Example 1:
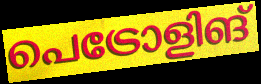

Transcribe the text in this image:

പെട്രോളിങ്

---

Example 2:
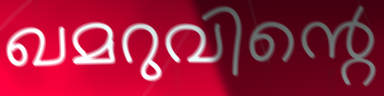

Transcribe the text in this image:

ഖമറുവിന്റെ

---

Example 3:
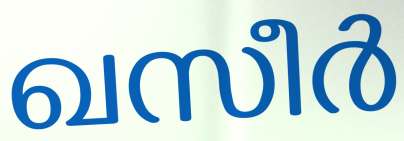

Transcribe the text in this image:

ഖസീർ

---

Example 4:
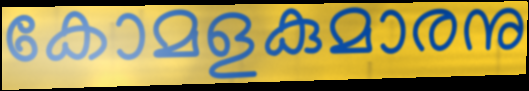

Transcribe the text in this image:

കോമളകുമാരനു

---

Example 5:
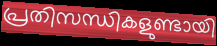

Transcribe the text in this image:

പ്രതിസന്ധികളുണ്ടായി